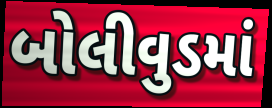
બોલીવુડમાં